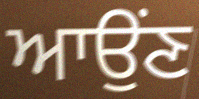
ਆਉਂਣ